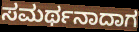
ಸಮರ್ಥನಾದಾಗ